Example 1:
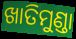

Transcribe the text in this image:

ଖାତିମୁଣ୍ଡା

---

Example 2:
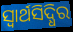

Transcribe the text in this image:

ସ୍ଵାର୍ଥସିଦ୍ଧିର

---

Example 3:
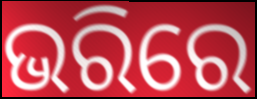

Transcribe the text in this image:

ଭରିରେ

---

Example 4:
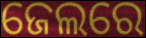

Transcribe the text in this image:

ଜେଲରେ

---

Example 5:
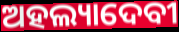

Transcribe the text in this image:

ଅହଲ୍ୟାଦେବୀ